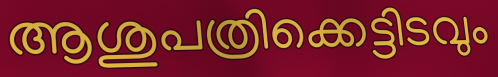
ആശുപത്രിക്കെട്ടിടവും